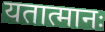
यतात्मानः